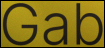
Gab